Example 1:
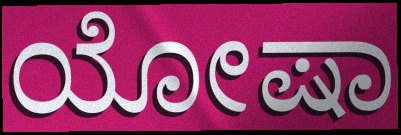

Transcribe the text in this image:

ಯೋಷಾ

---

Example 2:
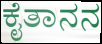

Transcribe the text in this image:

ಕೈತಾನನ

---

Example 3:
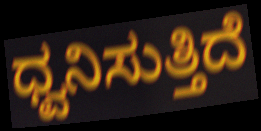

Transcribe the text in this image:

ಧ್ವನಿಸುತ್ತಿದೆ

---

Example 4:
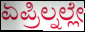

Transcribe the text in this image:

ಏಪ್ರಿಲ್ನಲ್ಲೇ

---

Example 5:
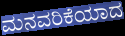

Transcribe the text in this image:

ಮನವರಿಕೆಯಾದ